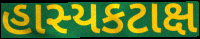
હાસ્યકટાક્ષ